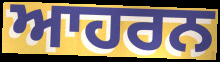
ਆਹਰਨ